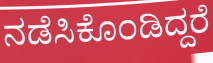
ನಡೆಸಿಕೊಂಡಿದ್ದರೆ